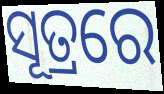
ସୂତ୍ରରେ